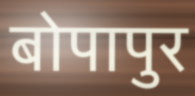
बोपापुर